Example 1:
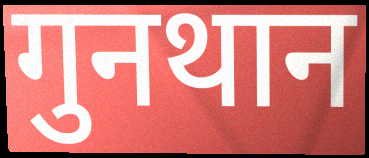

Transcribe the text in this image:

गुनथान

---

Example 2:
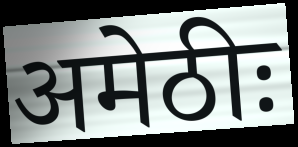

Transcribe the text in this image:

अमेठीः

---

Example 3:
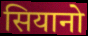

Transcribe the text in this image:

सियानो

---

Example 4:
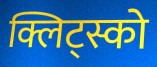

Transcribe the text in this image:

क्लिट्स्को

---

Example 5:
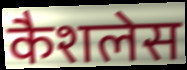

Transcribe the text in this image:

कैशलेस